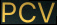
PCV